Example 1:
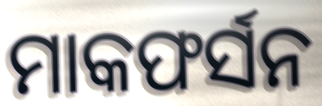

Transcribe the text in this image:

ମାକଫର୍ସନ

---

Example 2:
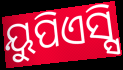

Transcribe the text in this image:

ୟୁପିଏସ୍ସି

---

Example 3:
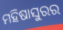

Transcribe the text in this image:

ମହିଷାସୁରର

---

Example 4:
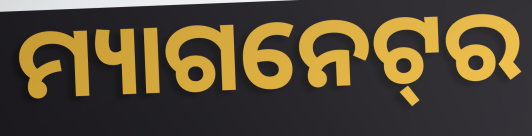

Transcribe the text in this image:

ମ୍ୟାଗନେଟ୍‌ର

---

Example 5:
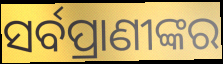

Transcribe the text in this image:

ସର୍ବପ୍ରାଣୀଙ୍କର